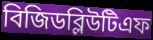
বিজিডব্লিউটিএফ